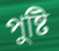
পুষ্টি